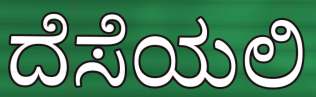
ದೆಸೆಯಲಿ